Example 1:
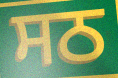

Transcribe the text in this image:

ਸਠ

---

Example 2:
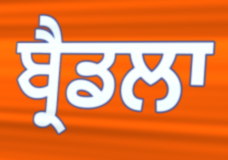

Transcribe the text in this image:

ਬ੍ਰੈਡਲਾ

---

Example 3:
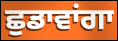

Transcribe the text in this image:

ਛੁਡਾਵਾਂਗਾ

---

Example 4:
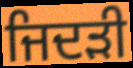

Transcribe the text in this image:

ਜਿਦੜੀ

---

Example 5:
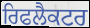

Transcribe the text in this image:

ਰਿਫਲੈਕਟਰ